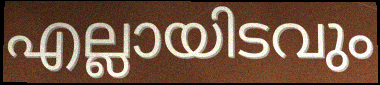
എല്ലായിടവും